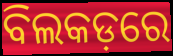
ବିଲକଡ଼ରେ